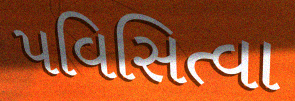
પવિસિત્વા